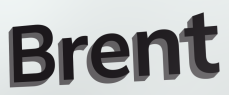
Brent